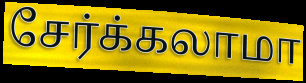
சேர்க்கலாமா